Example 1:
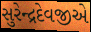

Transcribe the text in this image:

સુરેન્દ્રદેવજીએ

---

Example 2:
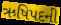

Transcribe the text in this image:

ઋષિપદની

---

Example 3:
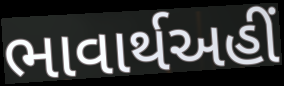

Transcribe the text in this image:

ભાવાર્થઅહીં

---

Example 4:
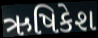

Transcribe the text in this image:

ઋષિકેશ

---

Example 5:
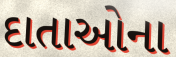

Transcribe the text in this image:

દાતાઓના